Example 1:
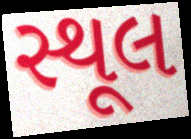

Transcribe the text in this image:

સ્થૂલ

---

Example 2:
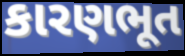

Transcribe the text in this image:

કારણભૂત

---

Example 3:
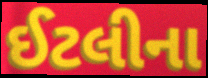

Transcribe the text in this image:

ઈટલીના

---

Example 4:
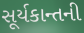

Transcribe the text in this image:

સૂર્યકાન્તની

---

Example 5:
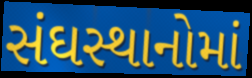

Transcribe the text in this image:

સંઘસ્થાનોમાં